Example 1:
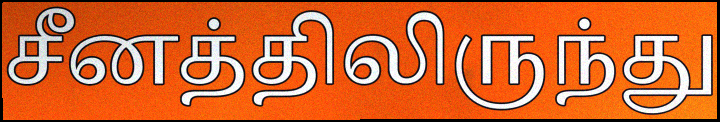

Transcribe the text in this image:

சீனத்திலிருந்து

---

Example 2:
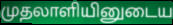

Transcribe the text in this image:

முதலாளியினுடைய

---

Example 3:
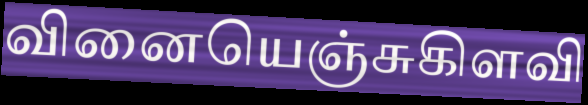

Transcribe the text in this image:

வினையெஞ்சுகிளவி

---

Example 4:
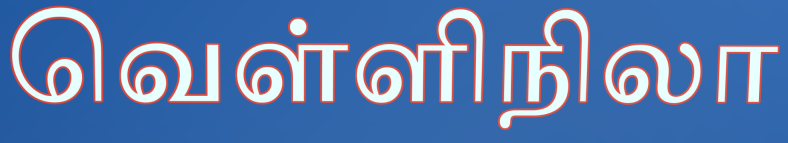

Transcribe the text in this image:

வெள்ளிநிலா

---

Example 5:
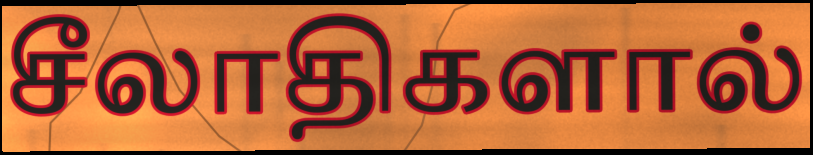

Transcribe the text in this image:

சீலாதிகளால்